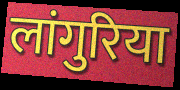
लांगुरिया